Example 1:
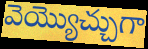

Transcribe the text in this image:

వెయ్యొచ్చుగా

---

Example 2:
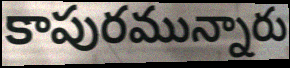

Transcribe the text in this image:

కాపురమున్నారు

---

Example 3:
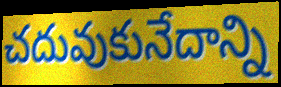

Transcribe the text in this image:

చదువుకునేదాన్ని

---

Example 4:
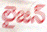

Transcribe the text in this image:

లైజన్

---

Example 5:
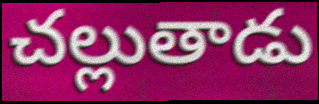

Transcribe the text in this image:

చల్లుతాడు